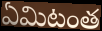
ఏమిటంత